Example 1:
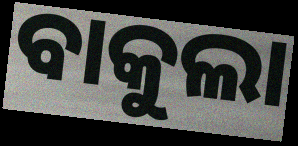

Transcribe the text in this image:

ବାକୁଲା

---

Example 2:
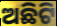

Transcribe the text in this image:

ଅଛିଟି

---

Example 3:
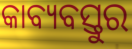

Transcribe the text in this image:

କାବ୍ୟବସ୍ତୁର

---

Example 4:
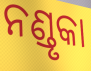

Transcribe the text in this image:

ନଣ୍ଡୃକା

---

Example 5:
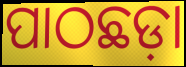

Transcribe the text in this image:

ପାଠଛଡ଼ା